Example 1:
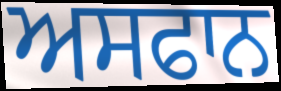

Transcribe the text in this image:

ਅਸਫਾਨ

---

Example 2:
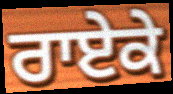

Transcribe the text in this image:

ਰਾਏਕੇ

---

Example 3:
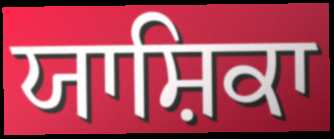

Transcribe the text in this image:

ਯਾਸ਼ਿਕਾ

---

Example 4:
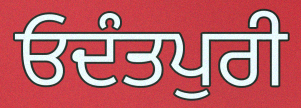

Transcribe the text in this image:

ਓਦੰਤਪੁਰੀ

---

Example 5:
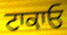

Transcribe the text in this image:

ਟਾਕਾਓ